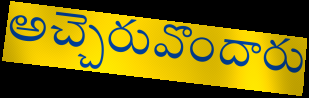
అచ్చెరువొందారు